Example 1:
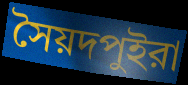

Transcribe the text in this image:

সৈয়দপুইরা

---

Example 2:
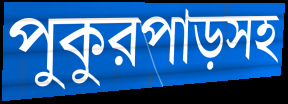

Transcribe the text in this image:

পুকুরপাড়সহ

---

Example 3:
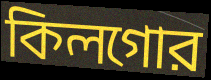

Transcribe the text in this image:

কিলগোর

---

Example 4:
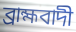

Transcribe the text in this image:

ব্রাহ্মবাদী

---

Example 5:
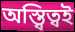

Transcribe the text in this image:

অস্ত্বিত্বই